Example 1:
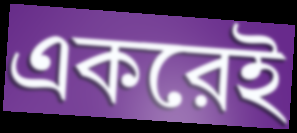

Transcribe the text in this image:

একরেই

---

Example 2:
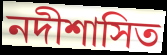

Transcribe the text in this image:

নদীশাসিত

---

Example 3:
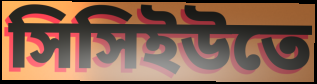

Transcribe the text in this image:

সিসিইউতে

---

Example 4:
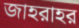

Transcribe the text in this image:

জাহরাহর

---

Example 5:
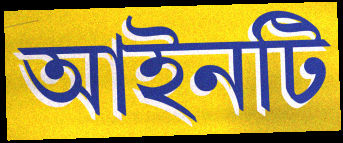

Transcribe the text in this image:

আইনটি